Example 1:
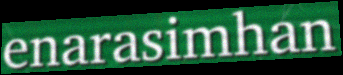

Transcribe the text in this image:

enarasimhan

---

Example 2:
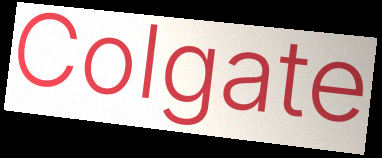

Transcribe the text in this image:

Colgate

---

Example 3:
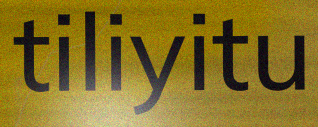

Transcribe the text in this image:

tiliyitu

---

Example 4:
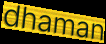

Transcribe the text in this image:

dhaman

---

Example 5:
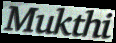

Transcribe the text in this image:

Mukthi